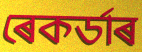
ৰেকৰ্ডাৰ